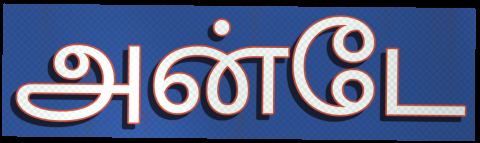
அன்டே